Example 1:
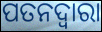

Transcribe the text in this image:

ପତନଦ୍ଵାରା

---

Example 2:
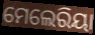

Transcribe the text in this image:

ମେଲେରିୟା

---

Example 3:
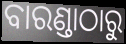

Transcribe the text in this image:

ବାରଣ୍ଡାଠାରୁ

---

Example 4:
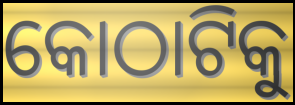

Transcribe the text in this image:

କୋଠାଟିକୁ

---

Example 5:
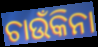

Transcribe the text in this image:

ଚାଉଁକିନା